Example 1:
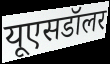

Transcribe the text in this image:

यूएसडॉलर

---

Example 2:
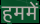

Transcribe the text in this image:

हममें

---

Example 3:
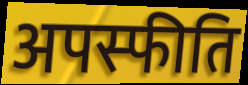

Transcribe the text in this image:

अपस्फीति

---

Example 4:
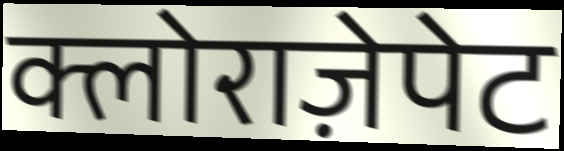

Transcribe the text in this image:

क्लोराज़ेपेट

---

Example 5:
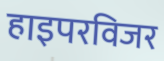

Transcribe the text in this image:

हाइपरविजर